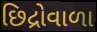
છિદ્રોવાળા